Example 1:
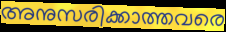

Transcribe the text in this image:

അനുസരിക്കാത്തവരെ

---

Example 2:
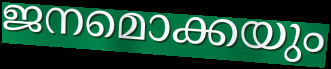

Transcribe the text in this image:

ജനമൊക്കയും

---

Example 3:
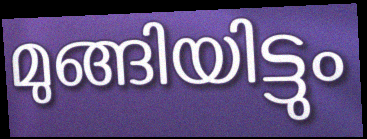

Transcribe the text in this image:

മുങ്ങിയിട്ടും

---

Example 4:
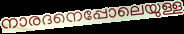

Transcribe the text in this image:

നാരദനെപ്പോലെയുള്ള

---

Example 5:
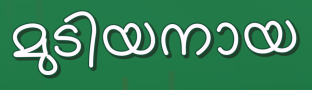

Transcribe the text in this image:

മുടിയനായ